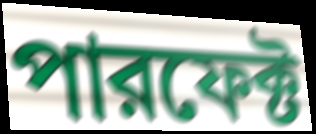
পারফেক্ট